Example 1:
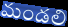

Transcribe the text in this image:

మండలి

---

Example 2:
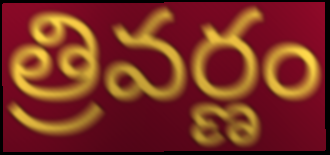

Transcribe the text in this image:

త్రివర్ణం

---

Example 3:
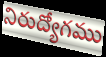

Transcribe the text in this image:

నిరుద్యోగము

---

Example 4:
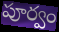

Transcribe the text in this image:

పూర్వం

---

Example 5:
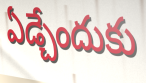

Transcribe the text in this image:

ఏడ్చేందుకు